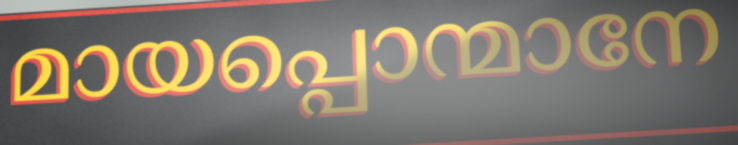
മായപ്പൊന്മാനേ